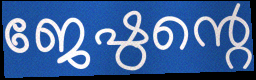
ജേഷ്ഠന്റെ